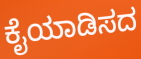
ಕೈಯಾಡಿಸದ